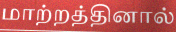
மாற்றத்தினால்